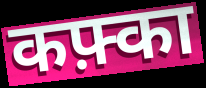
कफ़्का